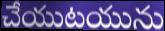
చేయుటయును